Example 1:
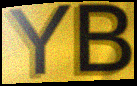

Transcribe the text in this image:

YB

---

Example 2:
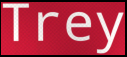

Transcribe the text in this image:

Trey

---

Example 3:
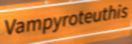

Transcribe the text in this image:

Vampyroteuthis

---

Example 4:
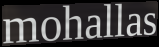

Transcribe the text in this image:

mohallas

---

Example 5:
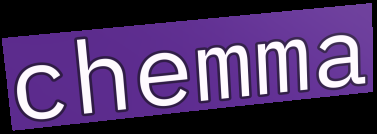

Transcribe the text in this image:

chemma